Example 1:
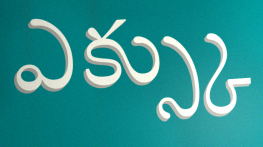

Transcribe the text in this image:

ఎక్స్కు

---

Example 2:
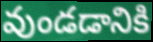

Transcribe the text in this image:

వుండడానికి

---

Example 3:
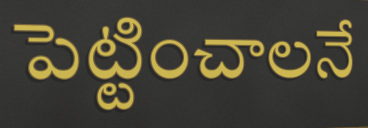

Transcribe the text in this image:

పెట్టించాలనే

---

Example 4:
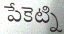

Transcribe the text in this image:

పేకెట్ని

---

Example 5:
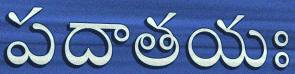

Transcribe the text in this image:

పదాతయః